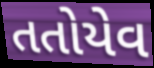
તતોયેવ